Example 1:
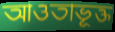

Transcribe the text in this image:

আওতাভূক্ত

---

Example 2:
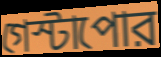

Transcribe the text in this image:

গেস্টাপোর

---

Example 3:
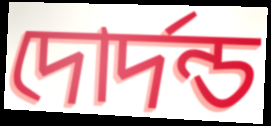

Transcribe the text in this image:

দোর্দন্ড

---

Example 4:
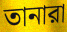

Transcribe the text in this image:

তানারা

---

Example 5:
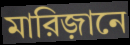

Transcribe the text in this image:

মারিজ়ানে